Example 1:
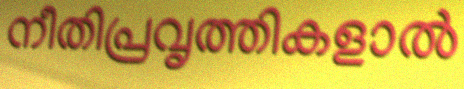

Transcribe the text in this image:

നീതിപ്രവൃത്തികളാൽ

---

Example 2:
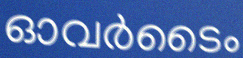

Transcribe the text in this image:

ഓവർടൈം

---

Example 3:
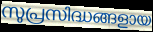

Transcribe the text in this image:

സുപ്രസിദ്ധങ്ങളായ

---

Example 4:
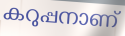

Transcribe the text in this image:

കറുപ്പനാണ്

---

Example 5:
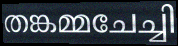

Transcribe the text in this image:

തങ്കമ്മചേച്ചി